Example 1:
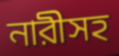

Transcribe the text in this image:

নারীসহ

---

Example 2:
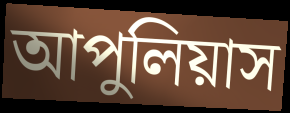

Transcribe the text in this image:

আপুলিয়াস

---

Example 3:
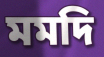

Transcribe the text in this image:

মমদি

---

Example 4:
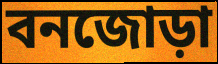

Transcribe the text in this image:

বনজোড়া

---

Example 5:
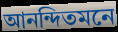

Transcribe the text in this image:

আনন্দিতমনে